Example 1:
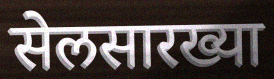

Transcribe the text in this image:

सेलसारख्या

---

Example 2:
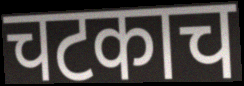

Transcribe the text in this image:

चटकाच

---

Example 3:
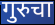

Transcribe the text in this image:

गुरुचा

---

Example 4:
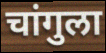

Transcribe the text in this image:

चांगुला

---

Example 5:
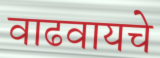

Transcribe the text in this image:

वाढवायचे